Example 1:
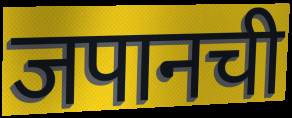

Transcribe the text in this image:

जपानची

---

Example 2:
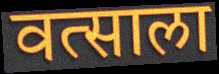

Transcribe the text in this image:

वत्साला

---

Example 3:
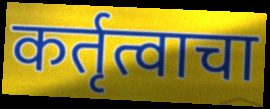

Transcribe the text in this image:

कर्तृत्वाचा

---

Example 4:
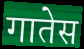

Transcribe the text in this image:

गातेस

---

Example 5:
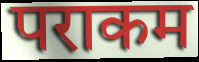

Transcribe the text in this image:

पराकम